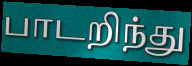
பாடறிந்து